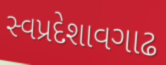
સ્વપ્રદેશાવગાઢ